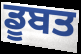
ਡੂਬਤ